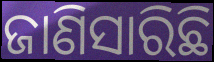
ଜାଣିସାରିଛି